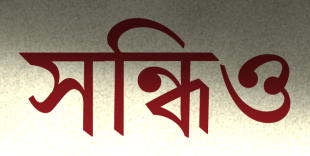
সন্ধিও